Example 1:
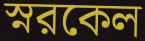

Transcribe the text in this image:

স্নরকেল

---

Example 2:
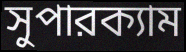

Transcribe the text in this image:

সুপারক্যাম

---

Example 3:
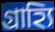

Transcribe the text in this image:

গ্রাহ্যি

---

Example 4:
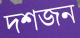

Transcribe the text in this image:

দশজন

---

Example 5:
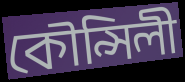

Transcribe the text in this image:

কৌন্সিলী